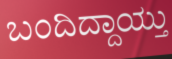
ಬಂದಿದ್ದಾಯ್ತು